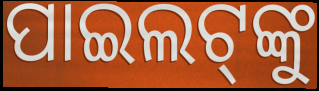
ପାଇଲଟ୍‌ଙ୍କୁ